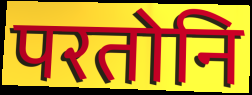
परतोनि